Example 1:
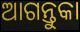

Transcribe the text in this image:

ଆଗନ୍ତୁକା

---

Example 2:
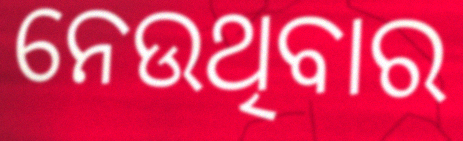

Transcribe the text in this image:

ନେଉଥିବାର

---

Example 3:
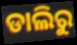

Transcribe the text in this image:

ଡାଲିରୁ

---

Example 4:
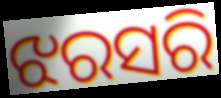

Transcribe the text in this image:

ଝରସରି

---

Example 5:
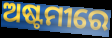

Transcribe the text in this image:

ଅଷ୍ଟମୀରେ